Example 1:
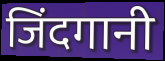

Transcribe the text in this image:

जिंदगानी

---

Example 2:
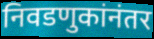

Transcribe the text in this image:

निवडणुकांनंतर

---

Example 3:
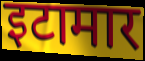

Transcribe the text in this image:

इटामार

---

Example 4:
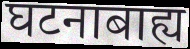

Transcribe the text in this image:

घटनाबाह्य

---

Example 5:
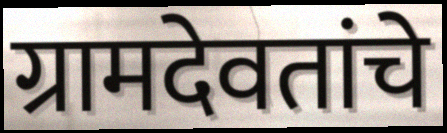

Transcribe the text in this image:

ग्रामदेवतांचे